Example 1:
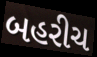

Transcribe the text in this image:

બહરીચ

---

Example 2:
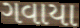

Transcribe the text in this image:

ગવાયા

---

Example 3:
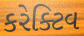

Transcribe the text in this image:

કરેક્ટિવ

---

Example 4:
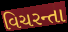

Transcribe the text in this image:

વિચરન્તા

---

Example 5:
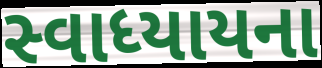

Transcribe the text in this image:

સ્વાધ્યાયના